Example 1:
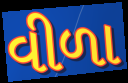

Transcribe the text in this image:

વીળા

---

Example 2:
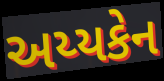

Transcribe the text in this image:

અય્યકેન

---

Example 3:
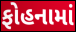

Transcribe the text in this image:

ફોહનામાં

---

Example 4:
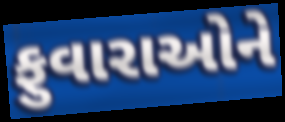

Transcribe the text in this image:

ફુવારાઓને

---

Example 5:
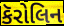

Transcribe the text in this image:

કૅરોલિન